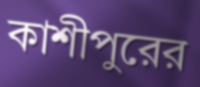
কাশীপুরের